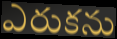
ఎరుకను